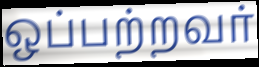
ஒப்பற்றவர்